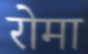
रोमा